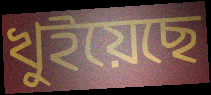
খুইয়েছে